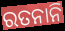
ରତନାନି